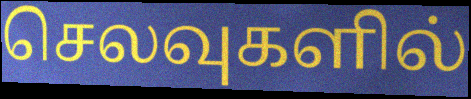
செலவுகளில்